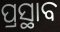
ପ୍ରସ୍ଥାବ